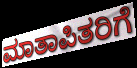
ಮಾತಾಪಿತರಿಗೆ